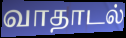
வாதாடல்